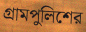
গ্রামপুলিশের